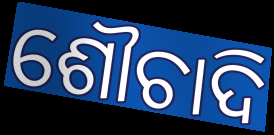
ଶୌଚାଦି